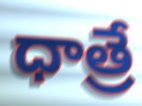
ధాత్రే